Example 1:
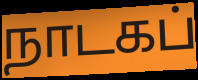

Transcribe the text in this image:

நாடகப்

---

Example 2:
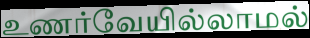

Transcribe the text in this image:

உணர்வேயில்லாமல்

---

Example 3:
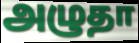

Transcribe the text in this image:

அழுதா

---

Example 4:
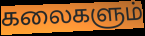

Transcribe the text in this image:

கலைகளும்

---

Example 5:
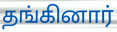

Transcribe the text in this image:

தங்கினார்